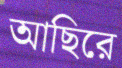
আছিরে